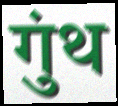
गुंथ